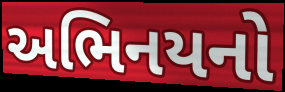
અભિનયનો